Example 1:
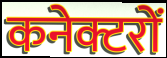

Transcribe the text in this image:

कनेक्टरों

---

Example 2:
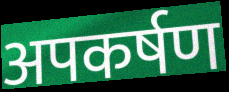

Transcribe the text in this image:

अपकर्षण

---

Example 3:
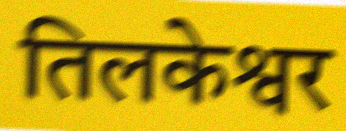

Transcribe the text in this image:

तिलकेश्वर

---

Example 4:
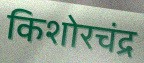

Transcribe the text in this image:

किशोरचंद्र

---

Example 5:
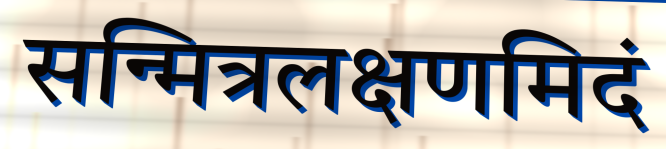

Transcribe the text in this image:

सन्मित्रलक्षणमिदं